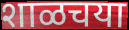
शाळचया